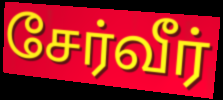
சேர்வீர்